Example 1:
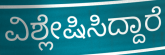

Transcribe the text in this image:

ವಿಶ್ಲೇಷಿಸಿದ್ದಾರೆ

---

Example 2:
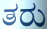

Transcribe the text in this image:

ತರು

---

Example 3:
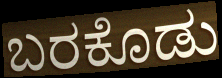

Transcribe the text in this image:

ಬರಕೊಡು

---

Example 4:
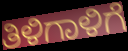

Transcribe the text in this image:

ತಿಳಿಗಾಳಿಗೆ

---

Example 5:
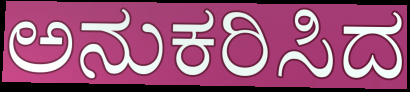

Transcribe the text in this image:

ಅನುಕರಿಸಿದ